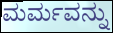
ಮರ್ಮವನ್ನು